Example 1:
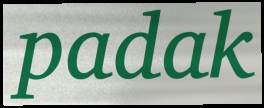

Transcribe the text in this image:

padak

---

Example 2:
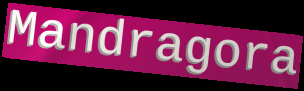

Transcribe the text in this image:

Mandragora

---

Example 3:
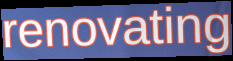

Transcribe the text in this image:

renovating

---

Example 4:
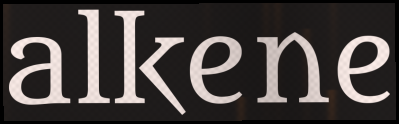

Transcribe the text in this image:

alkene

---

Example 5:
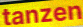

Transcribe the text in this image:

tanzen